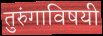
तुरुंगाविषयी